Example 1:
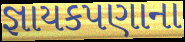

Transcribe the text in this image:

જ્ઞાયકપણાના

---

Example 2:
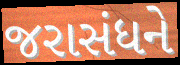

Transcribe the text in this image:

જરાસંધને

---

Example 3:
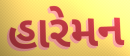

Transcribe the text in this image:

હારેમન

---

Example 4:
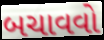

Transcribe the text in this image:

બચાવવો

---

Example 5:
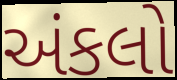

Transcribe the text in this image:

અંકલો